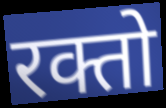
रक्तो